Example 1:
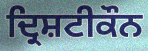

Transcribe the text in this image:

ਦ੍ਰਿਸ਼ਟੀਕੌਨ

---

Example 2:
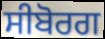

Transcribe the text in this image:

ਸੀਬੋਰਗ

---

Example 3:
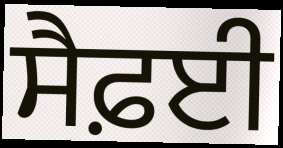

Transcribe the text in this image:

ਸੈਫ਼ਈ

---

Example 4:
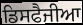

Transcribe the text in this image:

ਡਿਸਫੈਜੀਆ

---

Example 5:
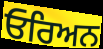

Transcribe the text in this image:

ਓਰਿਅਨ